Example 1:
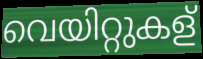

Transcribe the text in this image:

വെയിറ്റുകള്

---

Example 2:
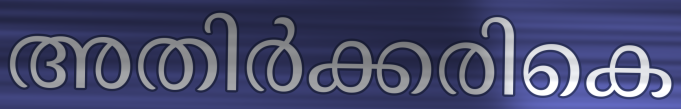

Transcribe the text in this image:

അതിർക്കരികെ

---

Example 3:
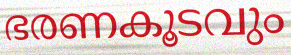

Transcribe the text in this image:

ഭരണകൂടവും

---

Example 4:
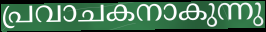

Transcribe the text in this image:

പ്രവാചകനാകുന്നു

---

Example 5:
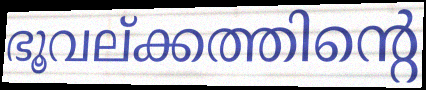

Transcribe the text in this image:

ഭൂവല്ക്കത്തിന്റെ